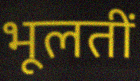
भूलतीं